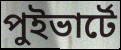
পুইভার্টে